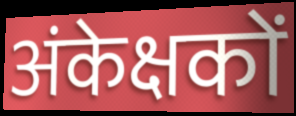
अंकेक्षकों